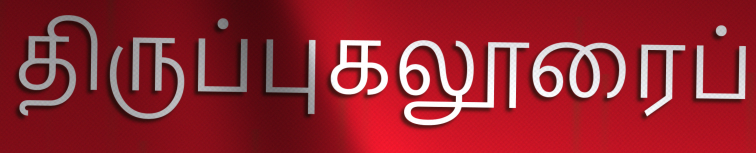
திருப்புகலூரைப்